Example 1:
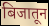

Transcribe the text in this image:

बिजातून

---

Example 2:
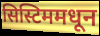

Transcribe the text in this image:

सिस्टिममधून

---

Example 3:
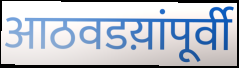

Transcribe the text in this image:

आठवडय़ांपूर्वी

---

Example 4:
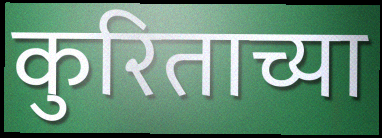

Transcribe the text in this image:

कुरिताच्या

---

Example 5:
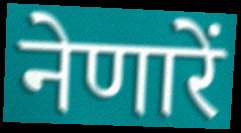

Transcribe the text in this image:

नेणारें